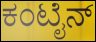
ಕಂಟೈನ್